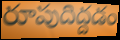
రూపుదిద్దడం